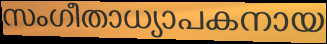
സംഗീതാധ്യാപകനായ